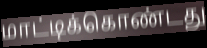
மாட்டிக்கொண்டது